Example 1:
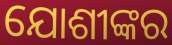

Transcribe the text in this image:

ଯୋଶୀଙ୍କର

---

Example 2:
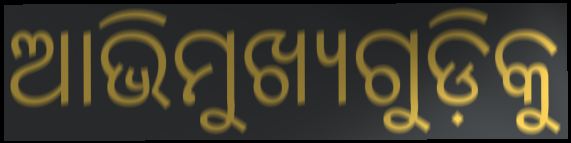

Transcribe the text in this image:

ଆଭିମୁଖ୍ୟଗୁଡ଼ିକୁ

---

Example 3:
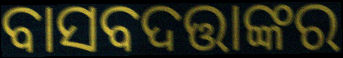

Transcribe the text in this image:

ବାସବଦତ୍ତାଙ୍କର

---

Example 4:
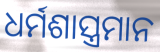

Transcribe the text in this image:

ଧର୍ମଶାସ୍ତ୍ରମାନ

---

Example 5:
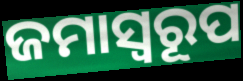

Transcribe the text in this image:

ଜମାସ୍ବରୂପ